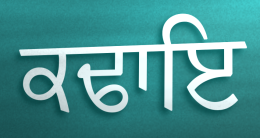
ਕਢਾਇ